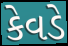
કેવડે